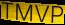
TMVP